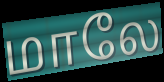
மாலே